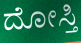
ದೋಸ್ತಿ